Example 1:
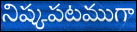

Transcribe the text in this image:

నిష్కపటముగా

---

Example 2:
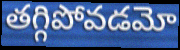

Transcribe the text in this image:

తగ్గిపోవడమో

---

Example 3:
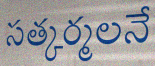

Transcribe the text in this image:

సత్కర్మలనే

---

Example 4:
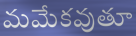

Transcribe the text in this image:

మమేకవుతూ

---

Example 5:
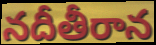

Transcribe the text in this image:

నదీతీరాన